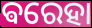
ଵରେହା